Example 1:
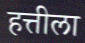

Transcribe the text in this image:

हत्तीला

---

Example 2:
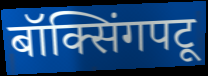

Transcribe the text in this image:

बॉक्सिंगपटू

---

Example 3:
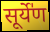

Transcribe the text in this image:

सूर्ये॑ण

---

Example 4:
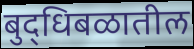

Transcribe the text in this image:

बुद्धिबळातील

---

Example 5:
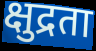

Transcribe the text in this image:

क्षुद्रता